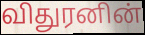
விதுரனின்